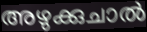
അഴുക്കുചാൽ